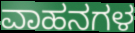
ವಾಹನಗಳ